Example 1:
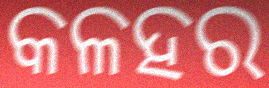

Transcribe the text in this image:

କଳହର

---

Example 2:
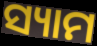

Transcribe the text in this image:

ସ୍ୟାମ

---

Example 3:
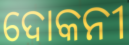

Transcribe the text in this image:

ଦୋକନୀ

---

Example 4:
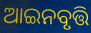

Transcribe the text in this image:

ଆଇନବୃତ୍ତି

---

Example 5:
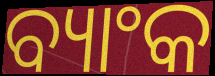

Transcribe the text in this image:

ବ୍ୟାଂକ